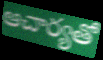
ఆచార్యతో